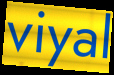
viyal